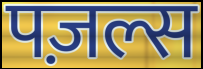
पज़ल्स